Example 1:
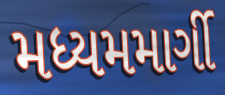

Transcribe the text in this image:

મધ્યમમાર્ગી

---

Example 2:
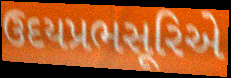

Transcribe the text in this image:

ઉદયપ્રભસૂરિએ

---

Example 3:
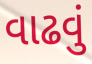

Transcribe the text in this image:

વાઢવું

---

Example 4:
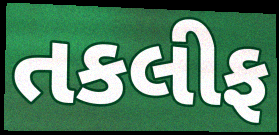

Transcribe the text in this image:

તકલીફ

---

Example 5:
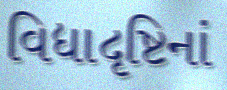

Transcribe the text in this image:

વિદ્યાદૃષ્ટિનાં